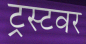
ट्रस्टवर